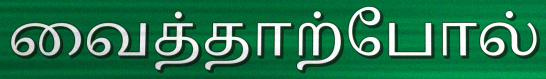
வைத்தாற்போல்